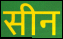
सीन